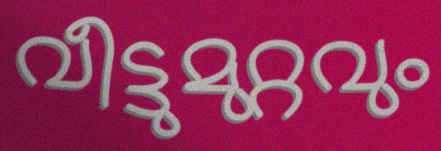
വീട്ടുമുറ്റവും